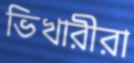
ভিখারীরা